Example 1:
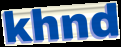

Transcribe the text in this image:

khnd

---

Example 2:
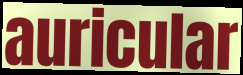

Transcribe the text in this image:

auricular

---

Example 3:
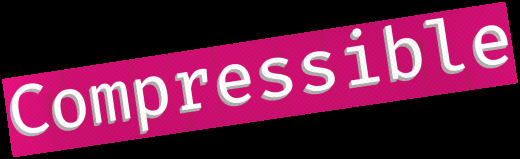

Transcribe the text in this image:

Compressible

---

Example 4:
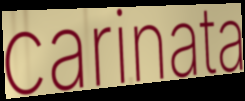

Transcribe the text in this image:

carinata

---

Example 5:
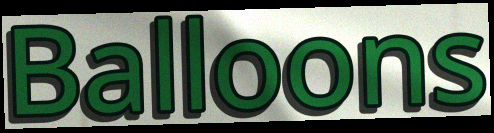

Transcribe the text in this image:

Balloons